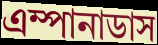
এম্পানাডাস